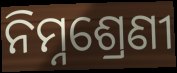
ନିମ୍ନଶ୍ରେଣୀ